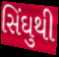
સિંઘુથી